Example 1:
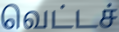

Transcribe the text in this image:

வெட்டச்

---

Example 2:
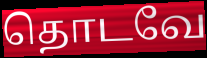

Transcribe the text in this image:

தொடவே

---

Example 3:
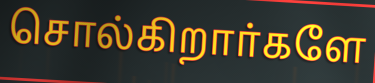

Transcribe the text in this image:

சொல்கிறார்களே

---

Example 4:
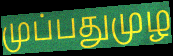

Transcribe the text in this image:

முப்பதுமுழ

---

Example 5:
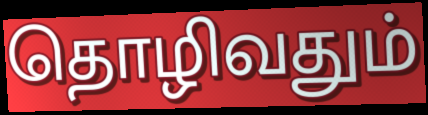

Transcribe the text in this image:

தொழிவதும்